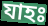
যাহঃ